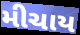
મીચાય